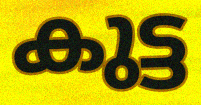
കുട്ട